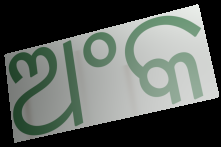
ଅଂକ